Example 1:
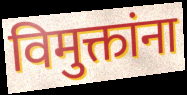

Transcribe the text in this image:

विमुक्तांना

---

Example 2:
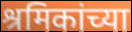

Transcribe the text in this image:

श्रमिकांच्या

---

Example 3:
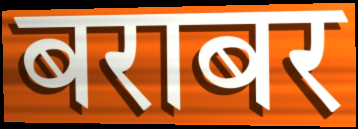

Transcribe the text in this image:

बराबर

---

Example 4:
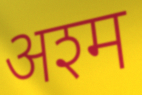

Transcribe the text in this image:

अश्म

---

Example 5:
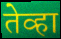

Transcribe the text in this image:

तेव्हा